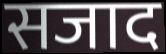
सजाद